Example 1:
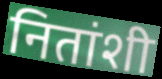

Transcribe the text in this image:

नितांशी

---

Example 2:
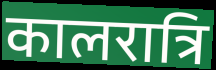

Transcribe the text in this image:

कालरात्रि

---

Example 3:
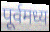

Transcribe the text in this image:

पूर्वमध्य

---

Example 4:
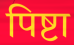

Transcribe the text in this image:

पिष्टा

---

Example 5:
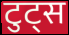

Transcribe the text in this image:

टुट्स